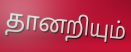
தானறியும்